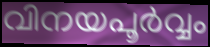
വിനയപൂർവ്വം